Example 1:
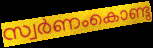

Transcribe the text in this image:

സ്വർണംകൊണ്ടു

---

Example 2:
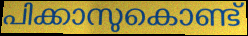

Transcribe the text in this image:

പിക്കാസുകൊണ്ട്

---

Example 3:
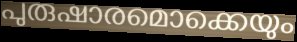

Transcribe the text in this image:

പുരുഷാരമൊക്കെയും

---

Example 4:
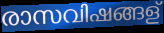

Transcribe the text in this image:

രാസവിഷങ്ങള്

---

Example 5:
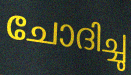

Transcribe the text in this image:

ചോദിച്ചു